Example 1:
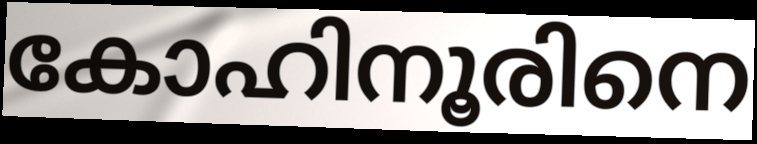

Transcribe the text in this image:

കോഹിനൂരിനെ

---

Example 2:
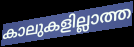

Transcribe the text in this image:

കാലുകളില്ലാത്ത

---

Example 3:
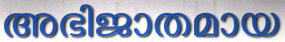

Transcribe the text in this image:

അഭിജാതമായ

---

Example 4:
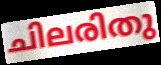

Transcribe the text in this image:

ചിലരിതു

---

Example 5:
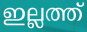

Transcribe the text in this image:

ഇല്ലത്ത്